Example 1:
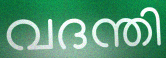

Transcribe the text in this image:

വദന്തി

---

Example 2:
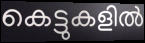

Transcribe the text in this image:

കെട്ടുകളിൽ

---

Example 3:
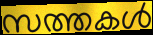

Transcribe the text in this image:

സത്തകൾ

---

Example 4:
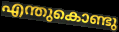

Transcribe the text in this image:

എന്തുകൊണ്ടു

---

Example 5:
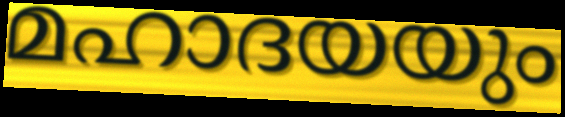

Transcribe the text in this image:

മഹാദയയും